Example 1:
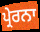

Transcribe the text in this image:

ਪ੍ਰੇਰਨਾ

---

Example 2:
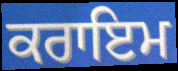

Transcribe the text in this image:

ਕਰਾਇਮ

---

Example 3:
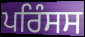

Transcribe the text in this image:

ਪਰਿੰਸਸ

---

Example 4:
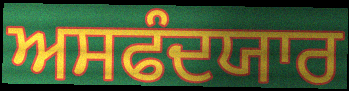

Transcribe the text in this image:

ਅਸਫੰਦਯਾਰ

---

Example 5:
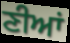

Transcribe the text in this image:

ਣੀਆਂ